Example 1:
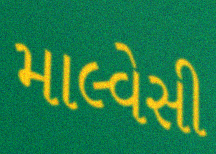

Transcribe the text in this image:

માલ્વેસી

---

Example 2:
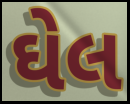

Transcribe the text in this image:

ઘેલ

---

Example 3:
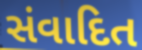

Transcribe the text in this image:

સંવાદિત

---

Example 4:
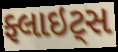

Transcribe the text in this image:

ફ્લાઇટ્સ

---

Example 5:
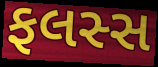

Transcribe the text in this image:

ફલસ્સ